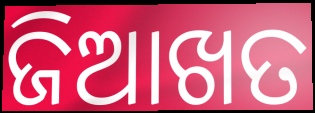
ଜିଆଖତ